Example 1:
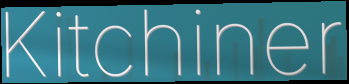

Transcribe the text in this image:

Kitchiner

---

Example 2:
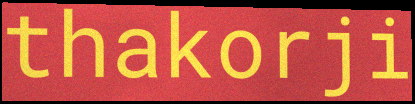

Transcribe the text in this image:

thakorji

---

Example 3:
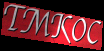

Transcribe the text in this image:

TMKOC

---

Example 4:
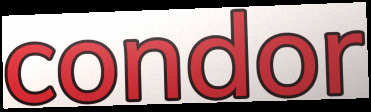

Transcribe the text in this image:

condor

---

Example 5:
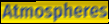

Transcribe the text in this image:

Atmospheres